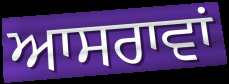
ਆਸਰਾਵਾਂ